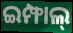
ଇମ୍ଫାଲ୍